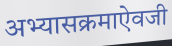
अभ्यासक्रमाऐवजी